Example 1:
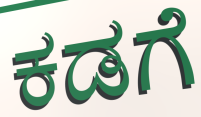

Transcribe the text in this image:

ಕಡಗೆ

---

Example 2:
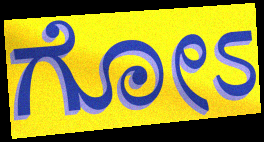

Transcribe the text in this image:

ಗೋಽ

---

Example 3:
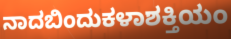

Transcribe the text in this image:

ನಾದಬಿಂದುಕಳಾಶಕ್ತಿಯಂ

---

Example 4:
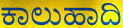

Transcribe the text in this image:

ಕಾಲುಹಾದಿ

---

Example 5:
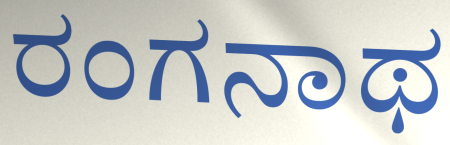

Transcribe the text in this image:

ರಂಗನಾಥ